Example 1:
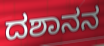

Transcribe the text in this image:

ದಶಾನನ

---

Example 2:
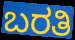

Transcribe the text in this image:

ಬರತಿ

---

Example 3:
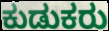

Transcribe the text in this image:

ಕುಡುಕರು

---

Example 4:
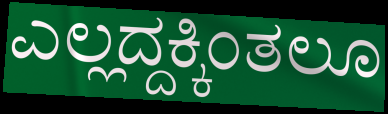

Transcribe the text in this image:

ಎಲ್ಲದ್ದಕ್ಕಿಂತಲೂ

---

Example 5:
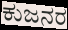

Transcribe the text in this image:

ಕುಜನರ